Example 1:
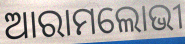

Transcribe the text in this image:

ଆରାମଲୋଭୀ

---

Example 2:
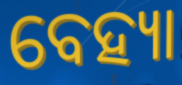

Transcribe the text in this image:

ବେହ୍ୟା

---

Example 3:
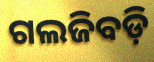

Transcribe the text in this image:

ଗଲଜିବଡ଼ି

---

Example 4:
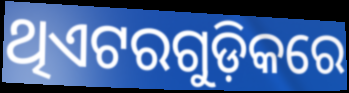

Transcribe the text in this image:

ଥିଏଟରଗୁଡ଼ିକରେ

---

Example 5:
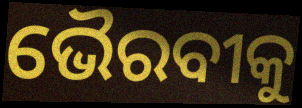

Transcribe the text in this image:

ଭୈରବୀକୁ